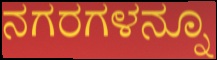
ನಗರಗಳನ್ನೂ